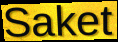
Saket